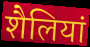
शैलियां